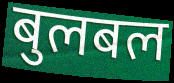
बुलबल